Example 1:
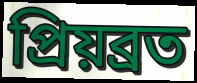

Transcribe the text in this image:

প্ৰিয়ব্ৰত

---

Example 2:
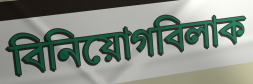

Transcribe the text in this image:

বিনিয়োগবিলাক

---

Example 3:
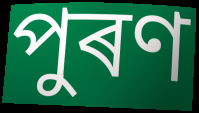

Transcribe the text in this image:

পুৰণ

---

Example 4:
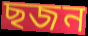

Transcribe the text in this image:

ছজন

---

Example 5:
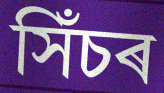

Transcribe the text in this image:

সিঁচৰ